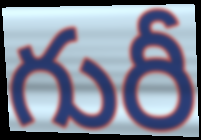
గురీ